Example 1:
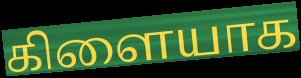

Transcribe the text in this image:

கிளையாக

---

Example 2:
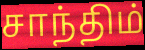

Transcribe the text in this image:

சாந்திம்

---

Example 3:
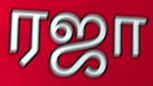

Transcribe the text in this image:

ரஜா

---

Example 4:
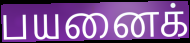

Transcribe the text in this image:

பயனைக்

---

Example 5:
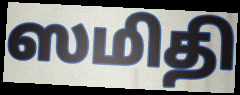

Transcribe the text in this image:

ஸமிதி